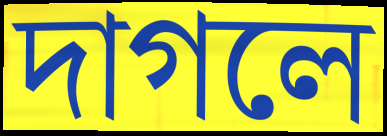
দাগলে